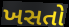
ખસતો